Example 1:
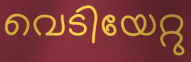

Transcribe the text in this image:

വെടിയേറ്റു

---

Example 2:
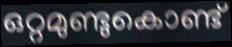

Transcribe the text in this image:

ഒറ്റമുണ്ടുകൊണ്ട്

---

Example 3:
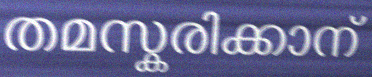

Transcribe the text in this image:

തമസ്കരിക്കാന്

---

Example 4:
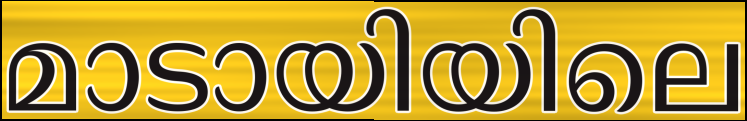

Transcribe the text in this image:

മാടായിയിലെ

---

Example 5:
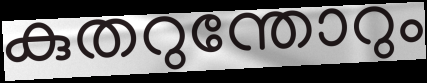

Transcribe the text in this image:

കുതറുന്തോറും